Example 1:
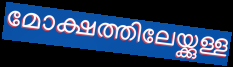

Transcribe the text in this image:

മോക്ഷത്തിലേയ്ക്കുള്ള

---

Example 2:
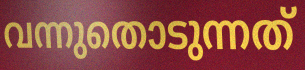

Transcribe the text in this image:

വന്നുതൊടുന്നത്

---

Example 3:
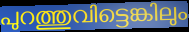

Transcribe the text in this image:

പുറത്തുവിട്ടെങ്കിലും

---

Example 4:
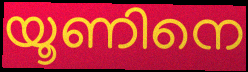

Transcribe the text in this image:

യൂണിനെ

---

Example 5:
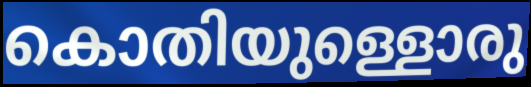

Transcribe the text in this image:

കൊതിയുള്ളൊരു